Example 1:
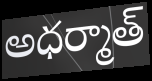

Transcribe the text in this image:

అధర్మాత్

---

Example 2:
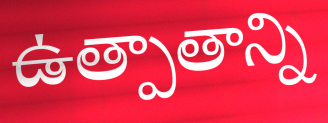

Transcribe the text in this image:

ఉత్పాతాన్ని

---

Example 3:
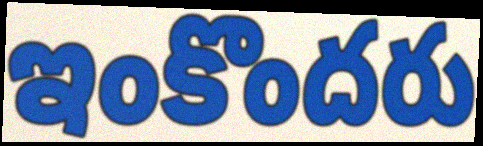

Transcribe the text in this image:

ఇంకొందరు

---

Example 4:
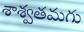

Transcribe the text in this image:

శాశ్వతమగు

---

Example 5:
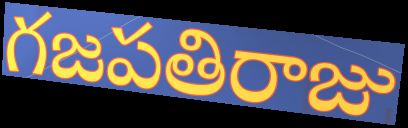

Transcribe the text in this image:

గజపతిరాజు